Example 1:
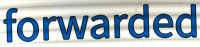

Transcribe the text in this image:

forwarded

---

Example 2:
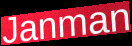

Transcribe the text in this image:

Janman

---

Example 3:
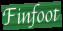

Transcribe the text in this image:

Finfoot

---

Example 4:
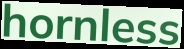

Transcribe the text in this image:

hornless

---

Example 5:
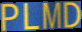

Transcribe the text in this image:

PLMD